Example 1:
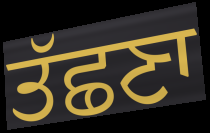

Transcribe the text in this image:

ਤੱਛਣਾ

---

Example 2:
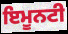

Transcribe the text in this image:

ਇਮੂਨਟੀ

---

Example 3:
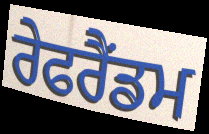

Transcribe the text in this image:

ਰੇਫਰੈਂਡਮ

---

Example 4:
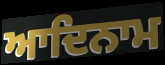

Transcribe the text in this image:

ਆਦਿਨਾਮ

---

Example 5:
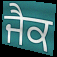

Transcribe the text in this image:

ਜੈਕ